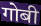
गोबी